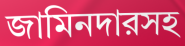
জামিনদারসহ